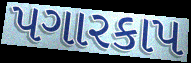
પગારકાપ